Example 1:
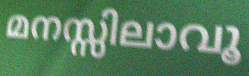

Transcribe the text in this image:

മനസ്സിലാവൂ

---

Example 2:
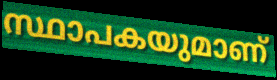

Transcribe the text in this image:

സ്ഥാപകയുമാണ്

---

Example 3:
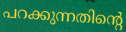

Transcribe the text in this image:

പറക്കുന്നതിന്റെ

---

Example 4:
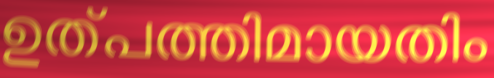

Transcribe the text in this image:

ഉത്പത്തിമായതിം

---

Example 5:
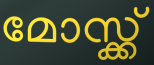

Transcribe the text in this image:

മോസ്ക്ക്